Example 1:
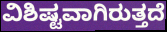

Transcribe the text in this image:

ವಿಶಿಷ್ಟವಾಗಿರುತ್ತದೆ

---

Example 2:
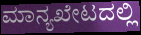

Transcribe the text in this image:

ಮಾನ್ಯಖೇಟದಲ್ಲಿ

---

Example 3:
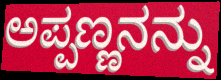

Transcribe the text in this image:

ಅಪ್ಪಣ್ಣನನ್ನು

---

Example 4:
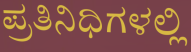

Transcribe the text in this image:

ಪ್ರತಿನಿಧಿಗಳಲ್ಲಿ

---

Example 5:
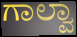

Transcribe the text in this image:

ಗಾಲ್ವಾ